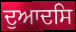
ਦੁਆਦਸਿ